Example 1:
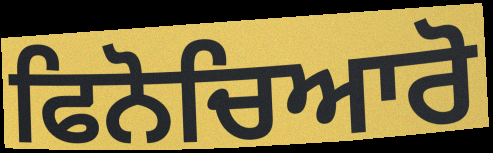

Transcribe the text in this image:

ਫਿਨੋਚਿਆਰੋ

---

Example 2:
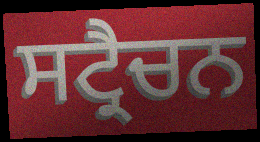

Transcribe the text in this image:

ਸਟ੍ਰੈਚਨ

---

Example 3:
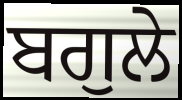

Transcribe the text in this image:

ਬਗੁਲੇ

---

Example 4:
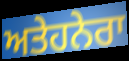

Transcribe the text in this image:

ਅਤੇਹਨੇਰਾ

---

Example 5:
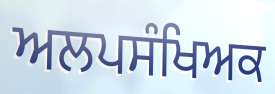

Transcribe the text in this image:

ਅਲਪਸੰਖਿਅਕ